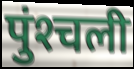
पुंश्चली